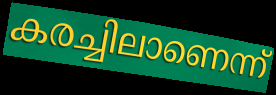
കരച്ചിലാണെന്ന്